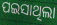
ପଇସାଥିଲା